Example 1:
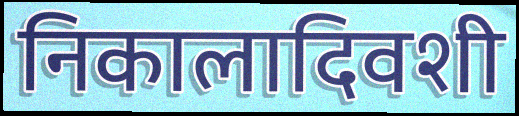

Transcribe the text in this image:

निकालादिवशी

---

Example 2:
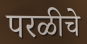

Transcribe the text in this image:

परळीचे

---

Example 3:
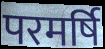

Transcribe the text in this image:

परमर्षि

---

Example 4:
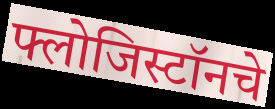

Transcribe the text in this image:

फ्लोजिस्टॉनचे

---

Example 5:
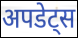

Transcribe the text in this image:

अपडेट्स